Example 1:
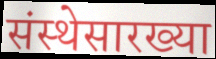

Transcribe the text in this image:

संस्थेसारख्या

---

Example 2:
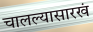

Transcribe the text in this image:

चालल्यासारखं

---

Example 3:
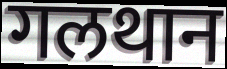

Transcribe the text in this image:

गलथान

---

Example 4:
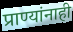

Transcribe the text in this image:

प्राण्यांनाही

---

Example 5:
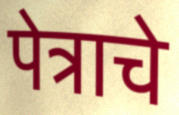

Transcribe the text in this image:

पेत्राचे